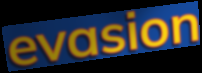
evasion